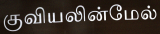
குவியலின்மேல்